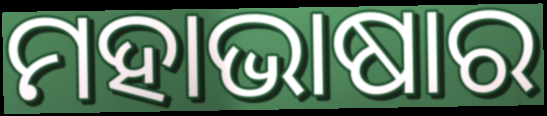
ମହାଭାଷାର